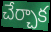
చేర్చాక